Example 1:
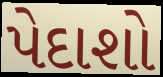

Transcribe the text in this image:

પેદાશો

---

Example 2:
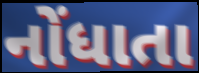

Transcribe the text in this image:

નોંધાતા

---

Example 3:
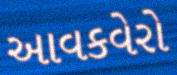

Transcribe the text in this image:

આવકવેરો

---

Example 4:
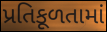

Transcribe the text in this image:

પ્રતિકૂળતામાં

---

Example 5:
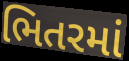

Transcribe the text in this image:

ભિતરમાં